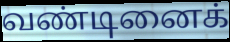
வண்டினைக்